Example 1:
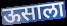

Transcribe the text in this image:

ऊसाला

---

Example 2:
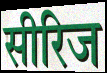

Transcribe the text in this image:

सीरिज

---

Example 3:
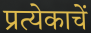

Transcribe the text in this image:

प्रत्येकाचें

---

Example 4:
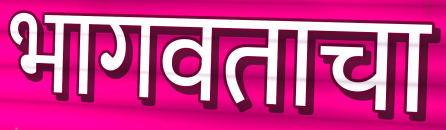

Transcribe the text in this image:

भागवताचा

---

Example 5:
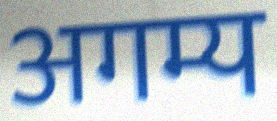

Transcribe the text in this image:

अगम्य